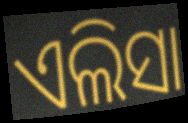
ଏଲିସା